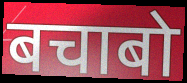
बचाबो